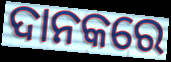
ଦାନକରେ